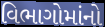
વિભાગોમાંનો